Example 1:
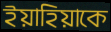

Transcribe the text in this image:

ইয়াহিয়াকে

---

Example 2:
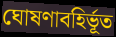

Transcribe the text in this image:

ঘোষণাবহির্ভূত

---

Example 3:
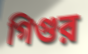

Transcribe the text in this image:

গিগুর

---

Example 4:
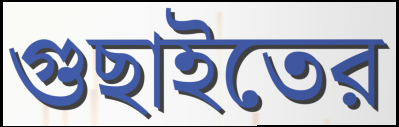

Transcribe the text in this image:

গুছাইতের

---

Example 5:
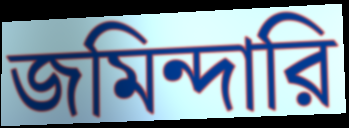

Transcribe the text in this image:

জমিন্দারি